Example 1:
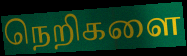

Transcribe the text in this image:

நெறிகளை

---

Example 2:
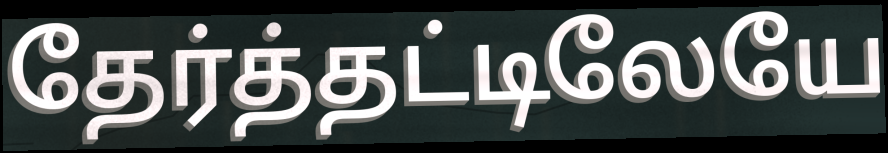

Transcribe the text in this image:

தேர்த்தட்டிலேயே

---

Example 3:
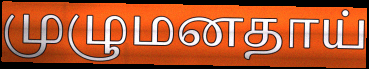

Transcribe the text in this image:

முழுமனதாய்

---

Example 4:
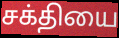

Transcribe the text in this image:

சக்தியை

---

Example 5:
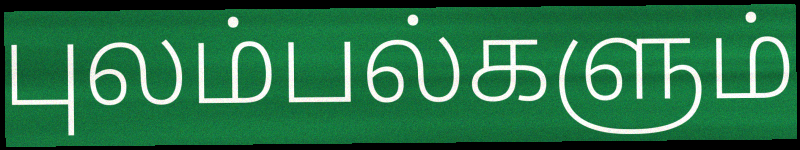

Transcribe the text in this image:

புலம்பல்களும்